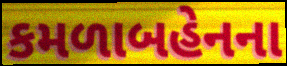
કમળાબહેનના